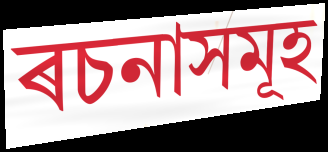
ৰচনাসমূহ